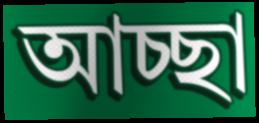
আচ্ছা